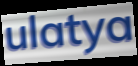
ulatya